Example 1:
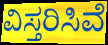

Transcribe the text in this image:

ವಿಸ್ತರಿಸಿವೆ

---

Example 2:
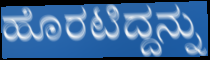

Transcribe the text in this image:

ಹೊರಟಿದ್ದನ್ನು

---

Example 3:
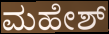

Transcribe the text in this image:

ಮಹೇಶ್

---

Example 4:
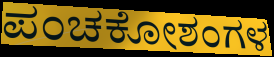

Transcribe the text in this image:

ಪಂಚಕೋಶಂಗಳ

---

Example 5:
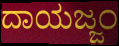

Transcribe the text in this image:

ದಾಯಜ್ಜಂ